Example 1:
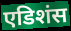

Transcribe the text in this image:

एडिशंस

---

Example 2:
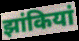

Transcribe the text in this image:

झांकियां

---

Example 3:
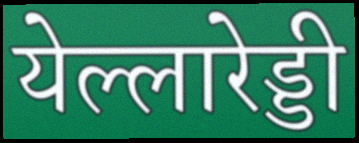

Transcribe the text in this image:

येल्लारेड्डी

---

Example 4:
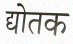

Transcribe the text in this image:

द्योतक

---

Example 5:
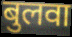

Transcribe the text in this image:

बुलवा